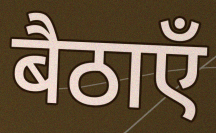
बैठाएँ